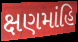
ક્ષણમાંહિ